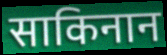
साकिनान